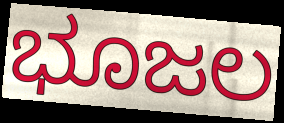
ಭೂಜಲ